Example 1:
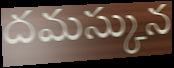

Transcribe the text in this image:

దమస్కున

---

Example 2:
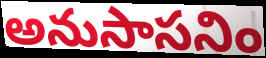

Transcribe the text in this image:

అనుసాసనిం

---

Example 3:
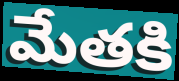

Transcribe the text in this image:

మేతకి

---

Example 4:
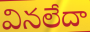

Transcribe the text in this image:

వినలేదా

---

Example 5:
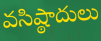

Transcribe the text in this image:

వసిష్ఠాదులు